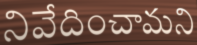
నివేదించామని